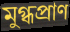
মুগ্ধপ্রাণ